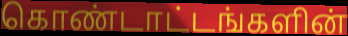
கொண்டாட்டங்களின்